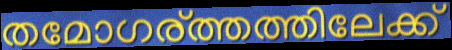
തമോഗര്ത്തത്തിലേക്ക്